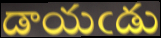
డాయఁడు